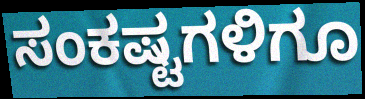
ಸಂಕಷ್ಟಗಳಿಗೂ